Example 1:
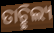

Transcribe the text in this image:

ତାଚ୍ଛିଲ୍ୟ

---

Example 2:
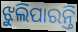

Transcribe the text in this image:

ଝୁଲିପାରନ୍ତି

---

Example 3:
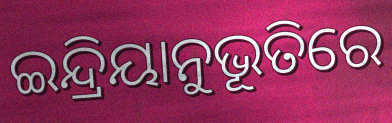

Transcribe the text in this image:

ଇନ୍ଦ୍ରିୟାନୁଭୂତିରେ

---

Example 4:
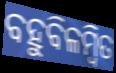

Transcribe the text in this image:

ବହୁବିଳମ୍ବିତ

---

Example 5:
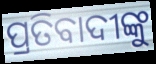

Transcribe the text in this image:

ପ୍ରତିବାଦୀଙ୍କୁ